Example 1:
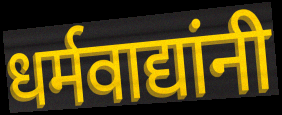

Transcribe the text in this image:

धर्मवाद्यांनी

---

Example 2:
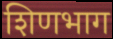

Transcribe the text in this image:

शिणभाग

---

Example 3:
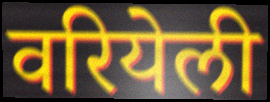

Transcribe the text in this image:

वरियेली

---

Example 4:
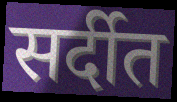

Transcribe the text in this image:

सर्दीत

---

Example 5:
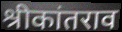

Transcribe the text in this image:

श्रीकांतराव